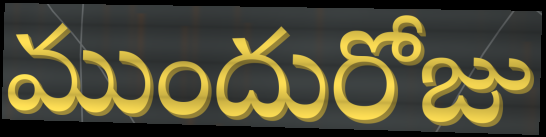
ముందురోజు